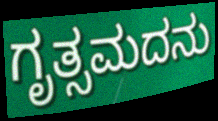
ಗೃತ್ಸಮದನು